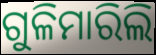
ଗୁଳିମାରିଲି